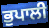
ਭੁਪਾਲੀ